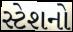
સ્ટેશનો